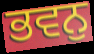
ਭਵਨੁ